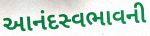
આનંદસ્વભાવની